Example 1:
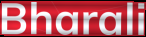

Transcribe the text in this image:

Bharali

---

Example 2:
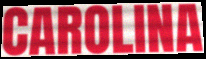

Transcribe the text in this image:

CAROLINA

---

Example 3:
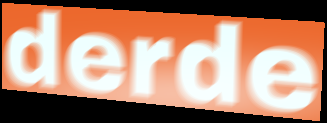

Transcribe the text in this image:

derde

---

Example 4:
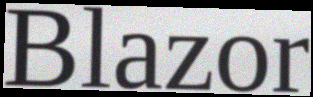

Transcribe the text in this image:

Blazor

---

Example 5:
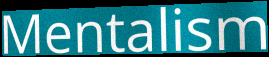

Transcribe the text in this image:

Mentalism